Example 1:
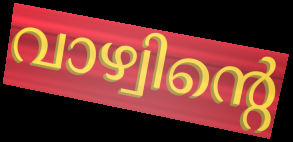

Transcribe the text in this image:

വാഴ്വിന്റെ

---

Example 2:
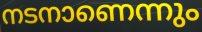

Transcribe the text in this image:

നടനാണെന്നും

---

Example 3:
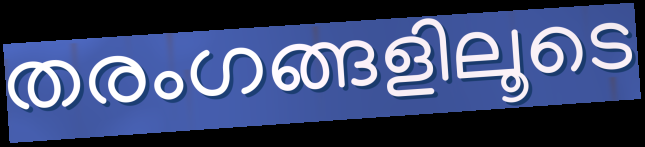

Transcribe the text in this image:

തരംഗങ്ങളിലൂടെ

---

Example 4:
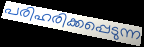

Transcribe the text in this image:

പരിഹരിക്കപ്പെടുന്ന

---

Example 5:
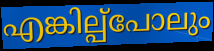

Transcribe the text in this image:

എങ്കില്പ്പോലും